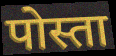
पोस्ता